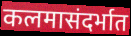
कलमासंदर्भात